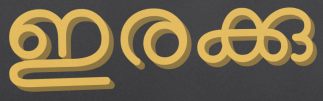
ഇരക്കു